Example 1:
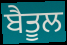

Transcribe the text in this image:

ਬੈਤੂਲ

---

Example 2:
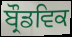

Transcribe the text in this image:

ਬ੍ਰੌਡਵਿਕ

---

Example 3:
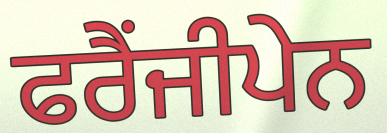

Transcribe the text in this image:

ਫਰੈਂਜੀਪੇਨ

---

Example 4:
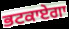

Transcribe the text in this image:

ਭਟਕਾਏਗਾ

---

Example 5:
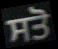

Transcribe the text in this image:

ਸਤੋ